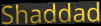
Shaddad